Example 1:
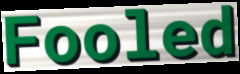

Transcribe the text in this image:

Fooled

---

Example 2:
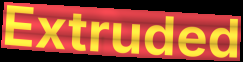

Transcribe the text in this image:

Extruded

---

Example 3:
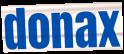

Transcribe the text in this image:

donax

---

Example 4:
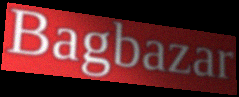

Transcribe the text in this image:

Bagbazar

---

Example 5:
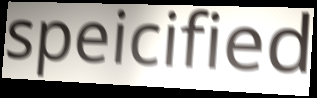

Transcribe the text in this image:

speicified